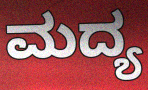
ಮದ್ಯ